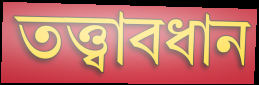
তত্ত্বাবধান